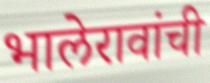
भालेरावांची